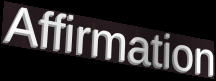
Affirmation